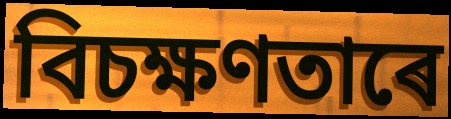
বিচক্ষণতাৰে